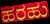
ಹರಹು